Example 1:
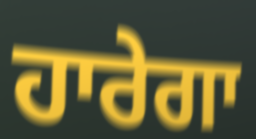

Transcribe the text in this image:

ਹਾਰੇਗਾ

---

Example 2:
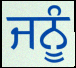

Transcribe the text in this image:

ਜਨੂੰ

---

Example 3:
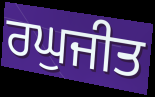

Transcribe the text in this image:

ਰਘੁਜੀਤ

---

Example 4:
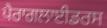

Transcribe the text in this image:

ਪੈਰਾਗਲਾਈਡਰਸ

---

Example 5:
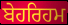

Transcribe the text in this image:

ਬੇਹਰਿਹਮ